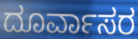
ದೂರ್ವಾಸರ